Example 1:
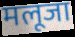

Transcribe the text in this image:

मलूजा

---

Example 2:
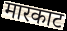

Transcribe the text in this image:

मारकाट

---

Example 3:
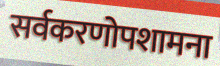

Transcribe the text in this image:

सर्वकरणोपशामना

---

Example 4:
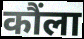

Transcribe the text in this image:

कौंला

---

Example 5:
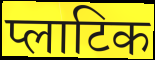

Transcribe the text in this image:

प्लाटिक